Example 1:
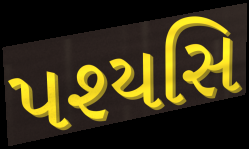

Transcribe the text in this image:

પશ્યસિ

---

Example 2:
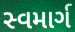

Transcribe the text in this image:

સ્વમાર્ગ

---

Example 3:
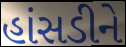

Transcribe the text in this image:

હાંસડીને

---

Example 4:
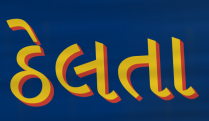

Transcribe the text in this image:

ઠેલતા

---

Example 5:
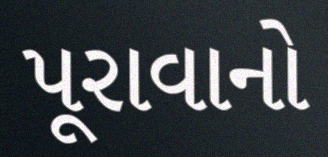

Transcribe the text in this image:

પૂરાવાનો